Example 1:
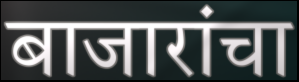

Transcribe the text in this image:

बाजारांचा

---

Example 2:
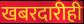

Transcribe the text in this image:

खबरदारीही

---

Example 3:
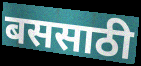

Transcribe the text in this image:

बससाठी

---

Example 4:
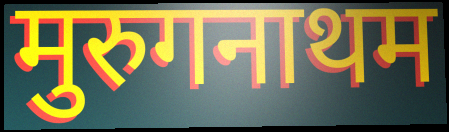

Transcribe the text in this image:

मुरुगनाथम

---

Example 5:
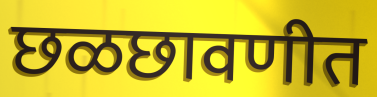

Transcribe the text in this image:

छळछावणीत